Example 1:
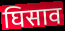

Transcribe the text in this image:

घिसाव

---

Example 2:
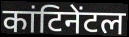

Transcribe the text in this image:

कांटिनेंटल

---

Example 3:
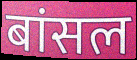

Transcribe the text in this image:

बांसल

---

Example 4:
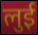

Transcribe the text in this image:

लुई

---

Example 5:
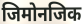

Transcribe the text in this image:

जिमोनजिक